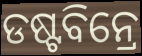
ଡଷ୍ଟବିନ୍ରେ